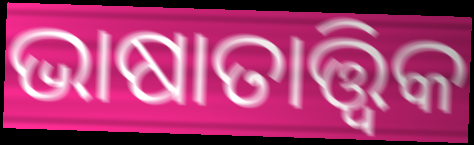
ଭାଷାତାତ୍ତ୍ୱିକ